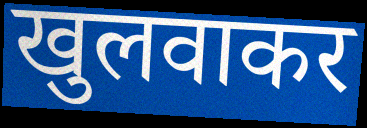
खुलवाकर